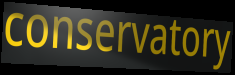
conservatory